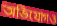
অভিযোগও